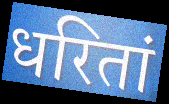
धरितां